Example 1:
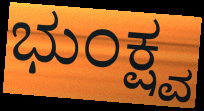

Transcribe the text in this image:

ಭುಂಕ್ಷ್ವ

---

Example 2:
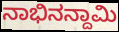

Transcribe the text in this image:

ನಾಭಿನನ್ದಾಮಿ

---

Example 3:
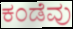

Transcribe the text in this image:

ಕಂಡೆವು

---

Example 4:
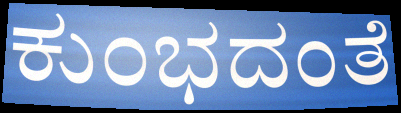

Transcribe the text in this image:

ಕುಂಭದಂತೆ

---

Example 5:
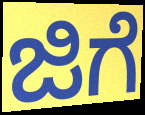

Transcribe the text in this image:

ಜಿಗೆ